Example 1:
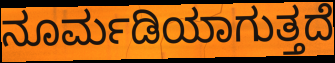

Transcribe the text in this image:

ನೂರ್ಮಡಿಯಾಗುತ್ತದೆ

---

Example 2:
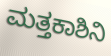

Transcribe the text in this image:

ಮತ್ತಕಾಶಿನಿ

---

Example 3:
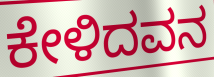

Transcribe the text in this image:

ಕೇಳಿದವನ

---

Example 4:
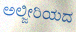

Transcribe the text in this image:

ಅಲ್ಜೀರಿಯದ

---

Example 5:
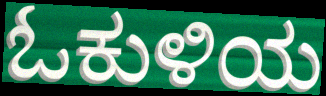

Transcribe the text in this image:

ಓಕುಳಿಯ